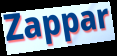
Zappar